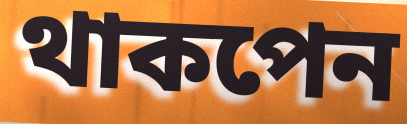
থাকপেন